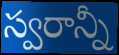
స్వరాన్నీ